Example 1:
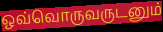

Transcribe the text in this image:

ஒவ்வொருவருடனும்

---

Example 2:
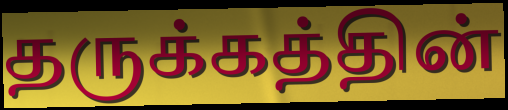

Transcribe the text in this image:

தருக்கத்தின்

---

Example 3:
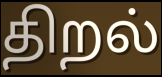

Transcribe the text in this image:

திறல்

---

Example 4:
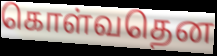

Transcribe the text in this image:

கொள்வதென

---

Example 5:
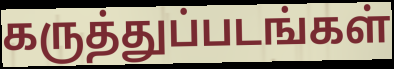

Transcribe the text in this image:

கருத்துப்படங்கள்